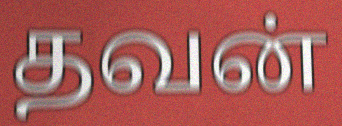
தவன்